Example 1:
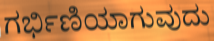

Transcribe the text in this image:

ಗರ್ಭಿಣಿಯಾಗುವುದು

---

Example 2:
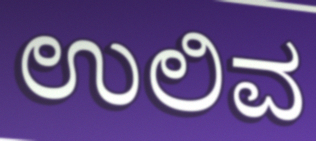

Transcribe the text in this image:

ಉಲಿವ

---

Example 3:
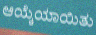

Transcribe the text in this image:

ಆಯ್ಕೆಯಾಯಿತು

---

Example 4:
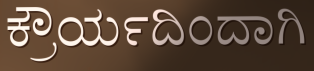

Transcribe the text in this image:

ಕ್ರೌರ್ಯದಿಂದಾಗಿ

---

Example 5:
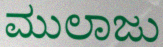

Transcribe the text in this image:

ಮುಲಾಜು